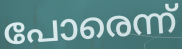
പോരെന്ന്